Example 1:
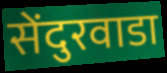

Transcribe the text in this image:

सेंदुरवाडा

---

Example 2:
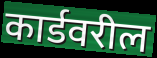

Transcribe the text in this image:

कार्डवरील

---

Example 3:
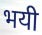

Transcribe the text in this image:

भयी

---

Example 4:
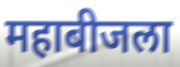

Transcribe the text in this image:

महाबीजला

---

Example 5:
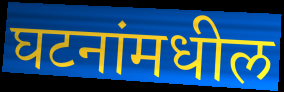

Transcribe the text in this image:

घटनांमधील